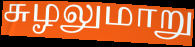
சுழலுமாறு